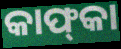
କାଫ୍‍କା